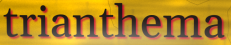
trianthema